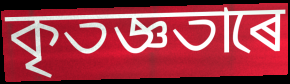
কৃতজ্ঞতাৰে